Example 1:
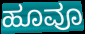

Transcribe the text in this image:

ಹೂವೂ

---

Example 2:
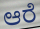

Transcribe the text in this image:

ಆರೆ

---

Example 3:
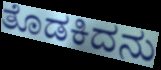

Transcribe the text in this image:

ತೊಡಕಿದನು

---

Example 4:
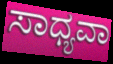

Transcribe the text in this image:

ಸಾಧ್ಯವಾ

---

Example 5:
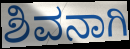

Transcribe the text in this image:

ಶಿವನಾಗಿ